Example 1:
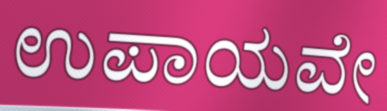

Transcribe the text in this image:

ಉಪಾಯವೇ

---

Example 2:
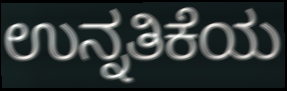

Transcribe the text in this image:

ಉನ್ನತಿಕೆಯ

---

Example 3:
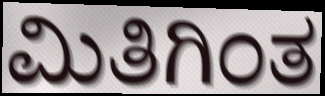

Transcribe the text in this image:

ಮಿತಿಗಿಂತ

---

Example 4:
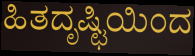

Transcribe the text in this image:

ಹಿತದೃಷ್ಟಿಯಿಂದ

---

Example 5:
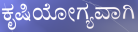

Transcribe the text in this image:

ಕೃಷಿಯೋಗ್ಯವಾಗಿ